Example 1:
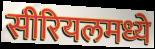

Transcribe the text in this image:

सीरियलमध्ये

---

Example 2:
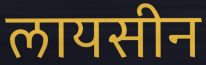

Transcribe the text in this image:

लायसीन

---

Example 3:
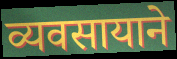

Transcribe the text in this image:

व्यवसायाने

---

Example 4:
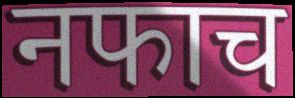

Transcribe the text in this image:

नफाच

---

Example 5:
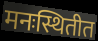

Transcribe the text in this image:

मनःस्थितीत